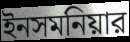
ইনসমনিয়ার